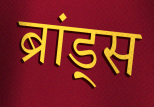
ब्रांड्स